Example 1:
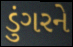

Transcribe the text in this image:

ડુંગરને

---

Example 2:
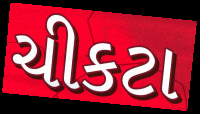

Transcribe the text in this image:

ચીકટા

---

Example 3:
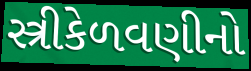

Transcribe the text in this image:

સ્ત્રીકેળવણીનો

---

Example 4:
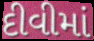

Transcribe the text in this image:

દીવીમાં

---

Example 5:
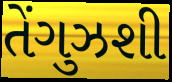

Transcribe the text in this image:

તેંગુઝશી